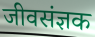
जीवसंज्ञक